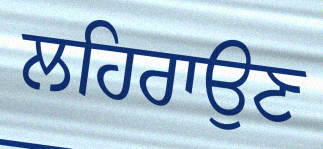
ਲਹਿਰਾਉਣ